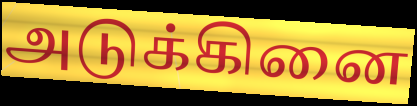
அடுக்கினை